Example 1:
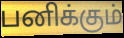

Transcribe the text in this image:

பனிக்கும்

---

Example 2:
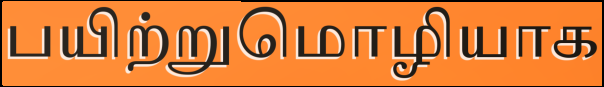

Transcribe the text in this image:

பயிற்றுமொழியாக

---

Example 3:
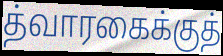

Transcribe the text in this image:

த்வாரகைக்குத்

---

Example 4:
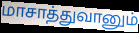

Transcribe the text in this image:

மாசாத்துவானும்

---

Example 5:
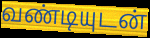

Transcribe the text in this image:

வண்டியுடன்